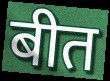
बीत